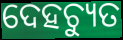
ଦେହଚ୍ୟୁତ